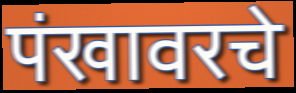
पंखावरचे